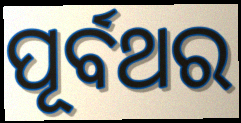
ପୂର୍ବଥର